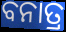
ବନାତ୍ର